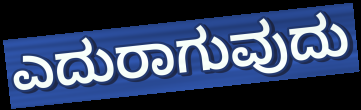
ಎದುರಾಗುವುದು